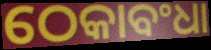
ଠେକାବଂଧା